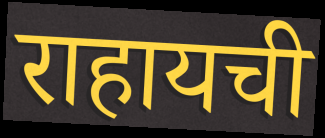
राहायची